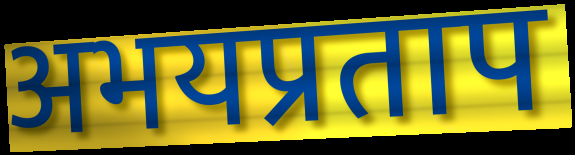
अभयप्रताप